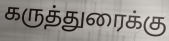
கருத்துரைக்கு